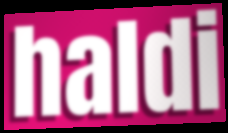
haldi